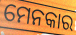
ମେନକାର